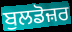
ਬੁਲਡੋਜ਼ਰ